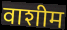
वाशीम